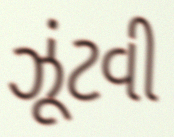
ઝૂંટવી